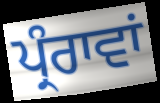
ਪ੍ਰੰਰਾਵਾਂ